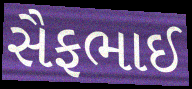
સૈફભાઈ